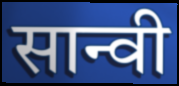
सान्वी